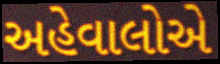
અહેવાલોએ